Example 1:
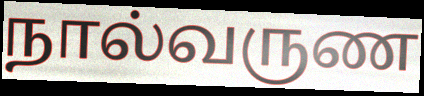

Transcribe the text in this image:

நால்வருண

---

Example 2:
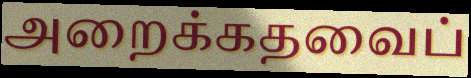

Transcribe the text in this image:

அறைக்கதவைப்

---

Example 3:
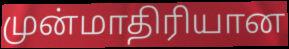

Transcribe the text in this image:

முன்மாதிரியான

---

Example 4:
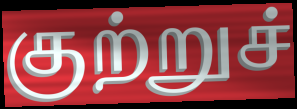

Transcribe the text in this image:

குற்றுச்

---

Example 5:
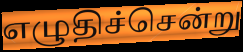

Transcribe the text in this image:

எழுதிச்சென்று